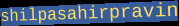
shilpasahirpravin